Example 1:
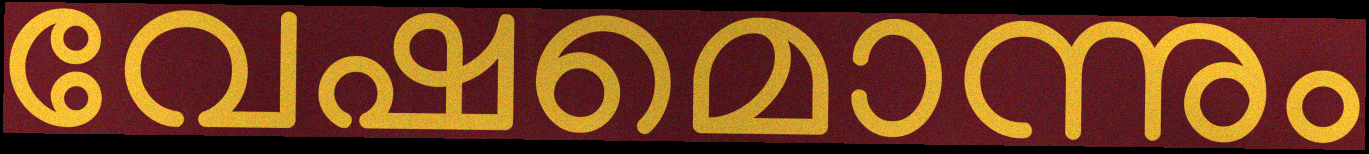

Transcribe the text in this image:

വേഷമൊന്നും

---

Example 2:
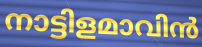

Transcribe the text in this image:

നാട്ടിളമാവിൻ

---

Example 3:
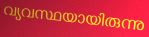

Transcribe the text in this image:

വ്യവസ്ഥയായിരുന്നു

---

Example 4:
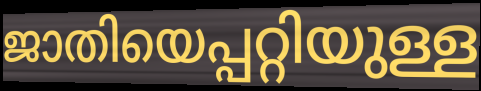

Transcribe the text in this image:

ജാതിയെപ്പറ്റിയുള്ള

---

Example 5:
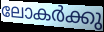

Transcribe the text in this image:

ലോകർക്കു